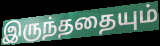
இருந்ததையும்